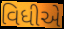
વિધીએ